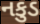
નકુડ